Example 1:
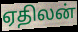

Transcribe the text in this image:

ஏதிலன்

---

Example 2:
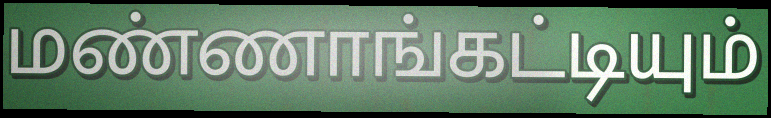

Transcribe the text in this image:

மண்ணாங்கட்டியும்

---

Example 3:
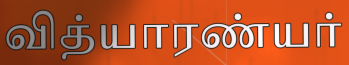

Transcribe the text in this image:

வித்யாரண்யர்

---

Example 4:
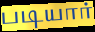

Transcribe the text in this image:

படியார்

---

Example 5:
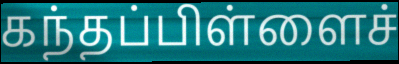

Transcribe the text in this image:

கந்தப்பிள்ளைச்